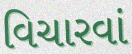
વિચારવાં